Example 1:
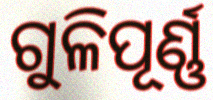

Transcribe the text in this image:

ଗୁଳିପୂର୍ଣ୍ଣ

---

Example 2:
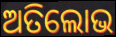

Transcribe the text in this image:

ଅତିଲୋଭ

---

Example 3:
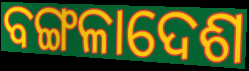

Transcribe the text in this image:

ବଙ୍ଗଳାଦେଶ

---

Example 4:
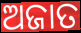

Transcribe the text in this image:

ଅଜାତ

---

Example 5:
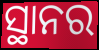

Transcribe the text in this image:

ସ୍ଥାନର